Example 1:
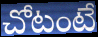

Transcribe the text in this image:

చోటంటే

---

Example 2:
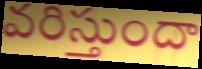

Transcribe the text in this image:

వరిస్తుందా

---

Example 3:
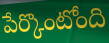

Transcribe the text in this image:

పేర్కొంటోంది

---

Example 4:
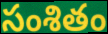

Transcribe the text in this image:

సంశితం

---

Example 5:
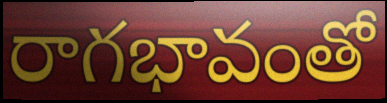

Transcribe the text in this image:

రాగభావంతో